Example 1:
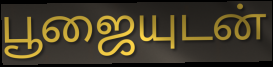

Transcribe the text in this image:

பூஜையுடன்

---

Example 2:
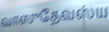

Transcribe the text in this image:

வாஸுதேவஸ்ய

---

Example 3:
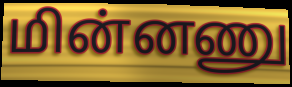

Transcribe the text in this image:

மின்னணு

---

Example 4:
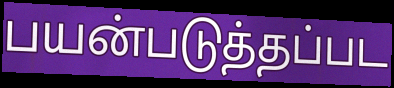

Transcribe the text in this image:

பயன்படுத்தப்பட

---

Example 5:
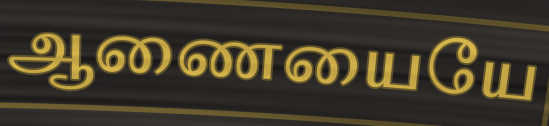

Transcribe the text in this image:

ஆணையையே